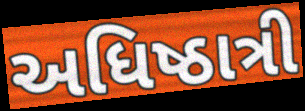
અધિષ્ઠાત્રી